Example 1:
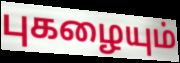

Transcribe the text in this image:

புகழையும்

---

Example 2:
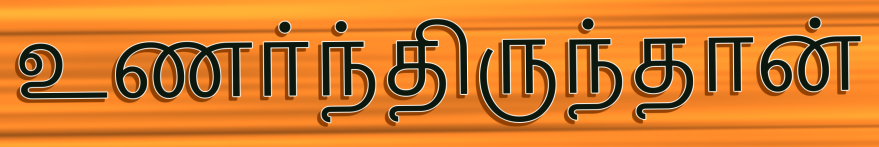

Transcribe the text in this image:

உணர்ந்திருந்தான்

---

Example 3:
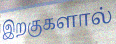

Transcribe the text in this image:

இறகுகளால்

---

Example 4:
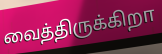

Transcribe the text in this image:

வைத்திருக்கிறா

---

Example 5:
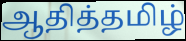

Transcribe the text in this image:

ஆதித்தமிழ்